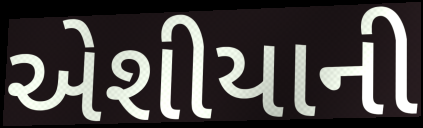
એશીયાની